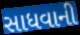
સાધવાની